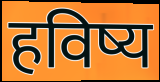
हविष्‍य